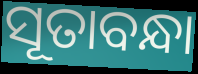
ସୂତାବନ୍ଧା